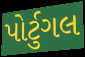
પોર્ટુગલ